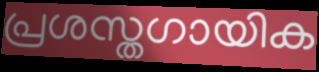
പ്രശസ്തഗായിക